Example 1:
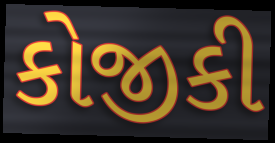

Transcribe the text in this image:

કોજીકી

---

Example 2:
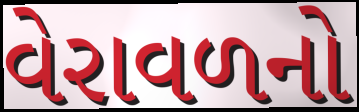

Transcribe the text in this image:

વેરાવળનો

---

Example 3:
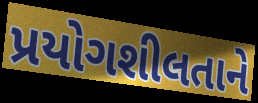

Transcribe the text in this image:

પ્રયોગશીલતાને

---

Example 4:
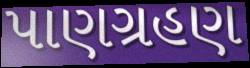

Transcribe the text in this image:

પાણગ્રહણ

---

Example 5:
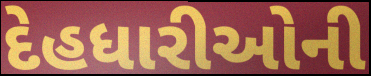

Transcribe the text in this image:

દેહધારીઓની